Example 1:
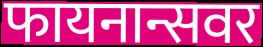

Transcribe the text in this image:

फायनान्सवर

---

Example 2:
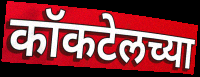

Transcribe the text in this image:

कॉकटेलच्या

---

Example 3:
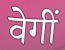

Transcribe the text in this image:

वेगीं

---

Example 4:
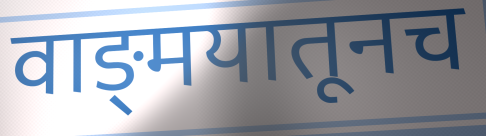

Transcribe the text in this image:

वाङ्मयातूनच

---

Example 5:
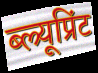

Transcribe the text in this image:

ब्ल्यूप्रिंट